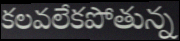
కలవలేకపోతున్న